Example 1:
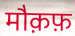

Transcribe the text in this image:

मौक़फ़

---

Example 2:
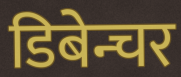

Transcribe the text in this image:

डिबेन्चर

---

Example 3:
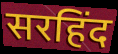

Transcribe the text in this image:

सरहिंद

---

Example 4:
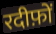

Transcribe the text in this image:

रदीफ़ों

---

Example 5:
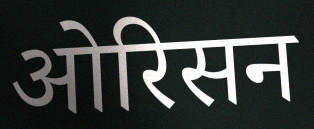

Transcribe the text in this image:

ओरिसन